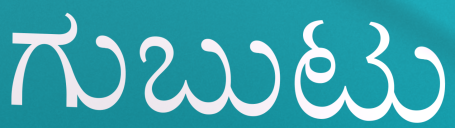
ಗುಬುಟು